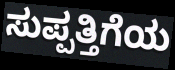
ಸುಪ್ಪತ್ತಿಗೆಯ